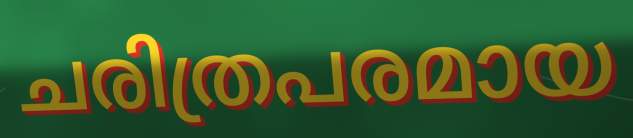
ചരിത്രപരമായ